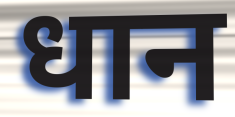
धान